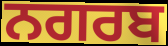
ਨਗਰਬ